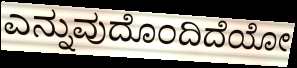
ಎನ್ನುವುದೊಂದಿದೆಯೋ